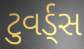
ટુવર્ડ્સ